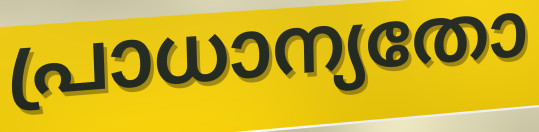
പ്രാധാന്യതോ